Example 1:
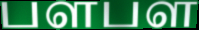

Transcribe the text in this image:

பளபள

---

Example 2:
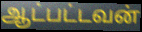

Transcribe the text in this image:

ஆட்பட்டவன்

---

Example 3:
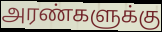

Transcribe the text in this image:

அரண்களுக்கு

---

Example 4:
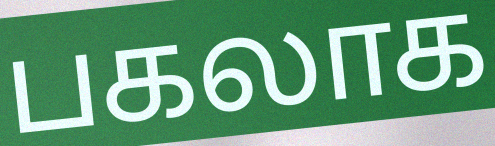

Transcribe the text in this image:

பகலாக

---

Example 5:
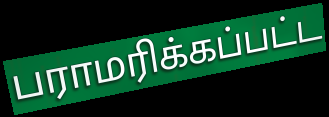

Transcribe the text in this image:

பராமரிக்கப்பட்ட